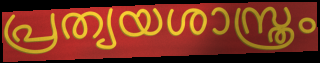
പ്രത്യയശാസ്ത്രം